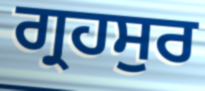
ਗ੍ਰਹਸੁਰ